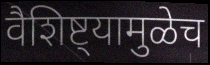
वैशिष्ट्यामुळेच